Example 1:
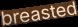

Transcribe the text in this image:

breasted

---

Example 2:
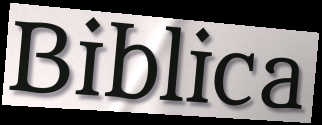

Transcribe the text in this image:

Biblica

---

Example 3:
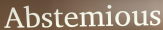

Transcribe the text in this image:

Abstemious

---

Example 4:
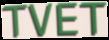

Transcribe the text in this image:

TVET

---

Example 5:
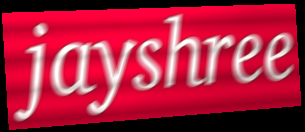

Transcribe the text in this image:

jayshree